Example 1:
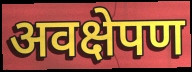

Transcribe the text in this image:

अवक्षेपण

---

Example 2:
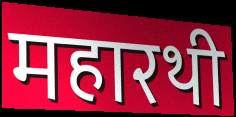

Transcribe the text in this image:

महारथी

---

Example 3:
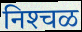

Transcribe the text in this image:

निश्‍चळ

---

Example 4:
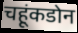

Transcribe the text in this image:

चहूंकडोन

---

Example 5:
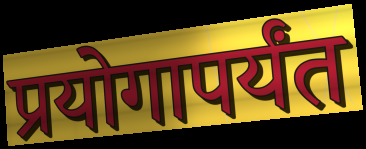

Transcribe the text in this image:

प्रयोगापर्यंत